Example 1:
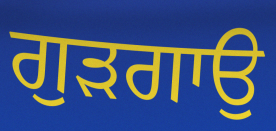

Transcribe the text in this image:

ਗੁੜਗਾਉ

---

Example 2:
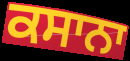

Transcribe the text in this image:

ਕਸਾਨਾ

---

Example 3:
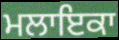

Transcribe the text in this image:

ਮਲਾਇਕਾ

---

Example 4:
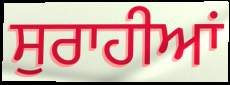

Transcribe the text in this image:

ਸੁਰਾਹੀਆਂ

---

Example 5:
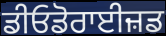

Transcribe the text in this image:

ਡੀਓਡੋਰਾਈਜ਼ਡ